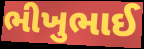
ભીખુભાઈ